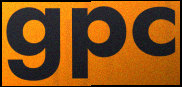
gpc